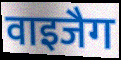
वाइजैग